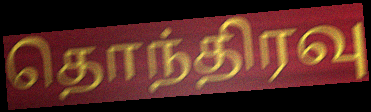
தொந்திரவு